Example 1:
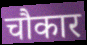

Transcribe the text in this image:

चौकार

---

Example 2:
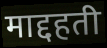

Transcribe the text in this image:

माद्दहती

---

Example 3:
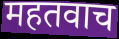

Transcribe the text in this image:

महतवाच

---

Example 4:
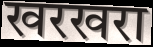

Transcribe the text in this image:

खरखरा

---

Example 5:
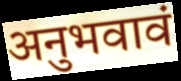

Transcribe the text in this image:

अनुभवावं